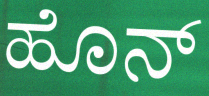
ಹೊನ್